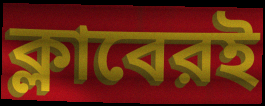
ক্লাবেরই